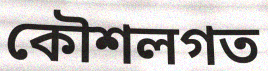
কৌশলগত